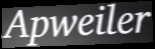
Apweiler